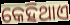
କେହିଥାଏ